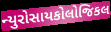
ન્યુરોસાયકોલોજિકલ